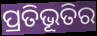
ପ୍ରତିଭୂତିର